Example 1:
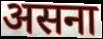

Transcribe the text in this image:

असना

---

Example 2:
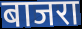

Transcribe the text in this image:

बाजरा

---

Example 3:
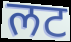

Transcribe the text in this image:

लट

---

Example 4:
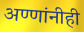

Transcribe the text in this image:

अण्णांनीही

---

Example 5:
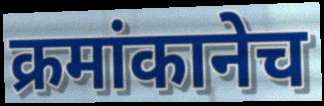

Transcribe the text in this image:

क्रमांकानेच